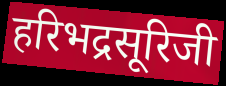
हरिभद्रसूरिजी